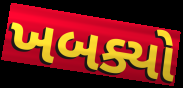
ખબક્યો